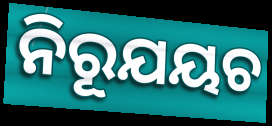
ନିରୂଯୟଚ